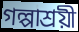
গল্পাশ্রয়ী